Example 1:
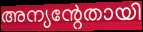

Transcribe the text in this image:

അന്യന്റേതായി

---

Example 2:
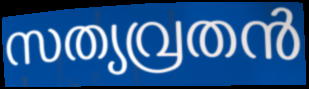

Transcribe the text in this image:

സത്യവ്രതൻ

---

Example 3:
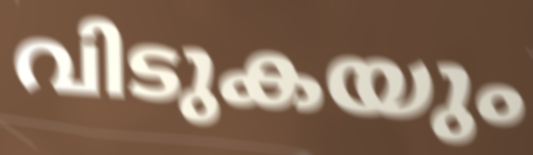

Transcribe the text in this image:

വിടുകയും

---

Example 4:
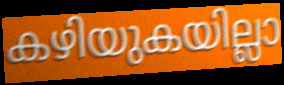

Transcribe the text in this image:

കഴിയുകയില്ലാ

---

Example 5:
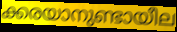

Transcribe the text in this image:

ക്കരയാനുണ്ടായീല